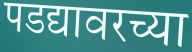
पडद्यावरच्या